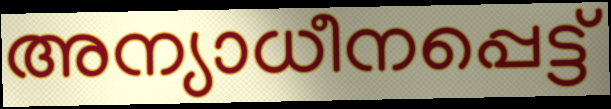
അന്യാധീനപ്പെട്ട്